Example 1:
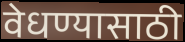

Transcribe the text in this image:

वेधण्यासाठी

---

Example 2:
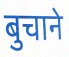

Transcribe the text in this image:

बुचाने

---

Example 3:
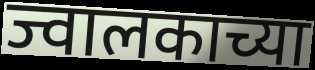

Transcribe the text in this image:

ज्वालकाच्या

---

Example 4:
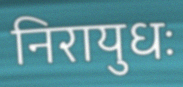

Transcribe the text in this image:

निरायुधः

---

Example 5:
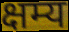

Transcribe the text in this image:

क्षम्य